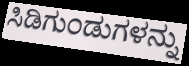
ಸಿಡಿಗುಂಡುಗಳನ್ನು